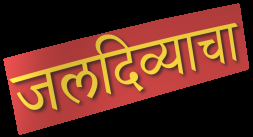
जलदिव्याचा